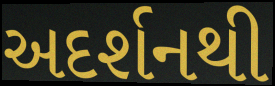
અદર્શનથી